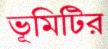
ভূমিটির